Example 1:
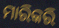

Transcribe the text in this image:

ମାରିକରି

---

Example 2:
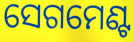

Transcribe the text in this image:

ସେଗମେଣ୍ଟ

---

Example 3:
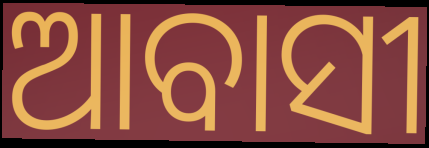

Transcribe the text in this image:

ଆବାସୀ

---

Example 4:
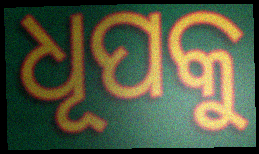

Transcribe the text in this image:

ଧୂପକୁ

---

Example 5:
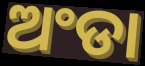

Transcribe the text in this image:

ଅଂଡା